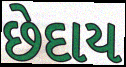
છેદાય